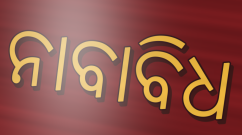
ନାବାବିଧ